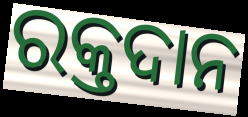
ରକ୍ତଦାନ